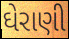
ઘેરાણી